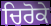
ਚਿਰੋਕੇ